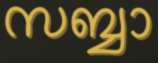
സബ്ബാ